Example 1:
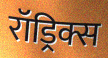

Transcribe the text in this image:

रॉड्रिक्स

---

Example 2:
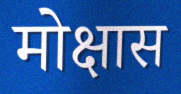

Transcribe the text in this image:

मोक्षास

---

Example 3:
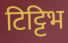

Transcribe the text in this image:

टिट्टिभ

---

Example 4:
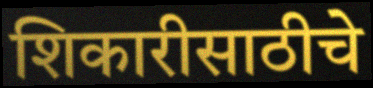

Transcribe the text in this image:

शिकारीसाठीचे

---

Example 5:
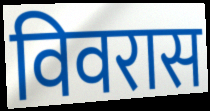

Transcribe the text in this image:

विवरास